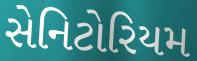
સેનિટોરિયમ